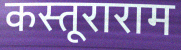
कस्तूराराम